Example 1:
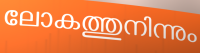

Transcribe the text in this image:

ലോകത്തുനിന്നും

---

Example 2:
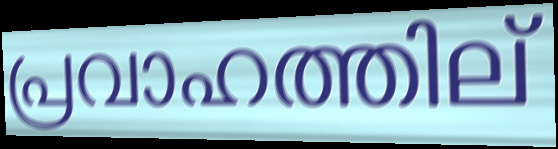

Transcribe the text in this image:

പ്രവാഹത്തില്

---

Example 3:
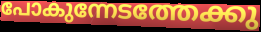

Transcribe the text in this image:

പോകുന്നേടത്തേക്കു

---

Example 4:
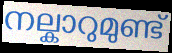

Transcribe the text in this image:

നല്കാറുമുണ്ട്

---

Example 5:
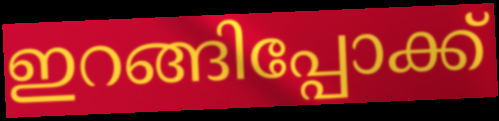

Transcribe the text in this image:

ഇറങ്ങിപ്പോക്ക്